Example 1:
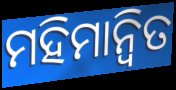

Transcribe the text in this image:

ମହିମାନ୍ୱିତ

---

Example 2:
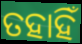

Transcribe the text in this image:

ତହାହିଁ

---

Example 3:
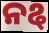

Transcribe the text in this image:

ନୡ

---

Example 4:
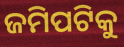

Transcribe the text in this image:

ଜମିପଟିକୁ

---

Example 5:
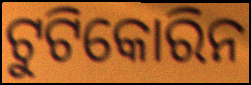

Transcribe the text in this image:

ଟୁଟିକୋରିନ